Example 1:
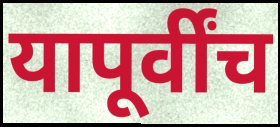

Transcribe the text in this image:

यापूर्वींच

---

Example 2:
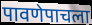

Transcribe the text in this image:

पावणेपाचला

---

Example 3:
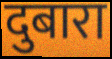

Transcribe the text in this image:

दुबारा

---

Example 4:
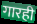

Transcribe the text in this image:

गारही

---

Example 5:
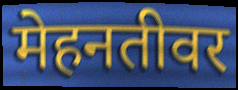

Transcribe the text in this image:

मेहनतीवर